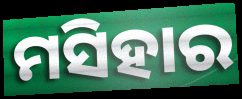
ମସିହାର